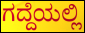
ಗದ್ದೆಯಲ್ಲಿ